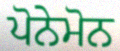
ਪੋਨੇਮੋਨ